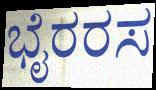
ಭೈರರಸ